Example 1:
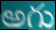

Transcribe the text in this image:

అగు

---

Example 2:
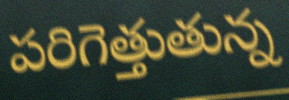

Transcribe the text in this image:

పరిగెత్తుతున్న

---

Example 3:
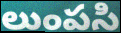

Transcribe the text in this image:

లుంపసి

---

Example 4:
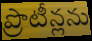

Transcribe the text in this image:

ప్రొటీన్లను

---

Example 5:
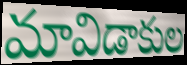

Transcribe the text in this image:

మావిడాకుల